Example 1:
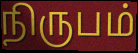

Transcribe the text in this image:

நிருபம்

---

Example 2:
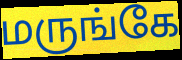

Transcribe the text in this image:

மருங்கே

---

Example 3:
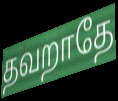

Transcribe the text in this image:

தவறாதே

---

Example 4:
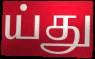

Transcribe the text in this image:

ய்து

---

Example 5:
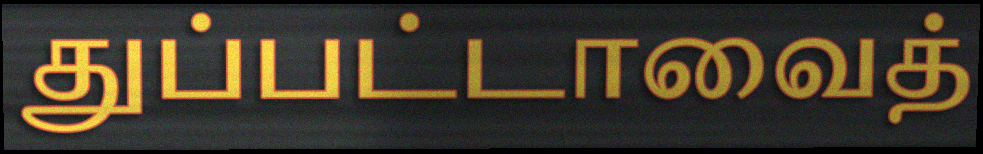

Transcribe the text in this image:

துப்பட்டாவைத்